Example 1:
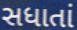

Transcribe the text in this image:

સધાતાં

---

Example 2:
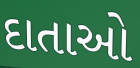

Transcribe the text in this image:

દાતાઓ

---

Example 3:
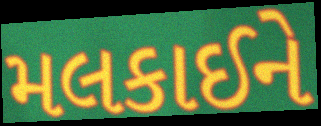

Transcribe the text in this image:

મલકાઈને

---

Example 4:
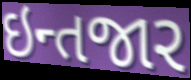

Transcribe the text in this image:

ઇન્તજાર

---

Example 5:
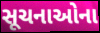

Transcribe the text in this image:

સૂચનાઓના